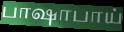
பாஷாபாய்